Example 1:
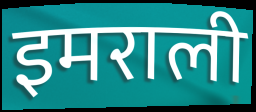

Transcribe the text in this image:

इमराली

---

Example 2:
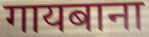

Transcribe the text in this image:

गायबाना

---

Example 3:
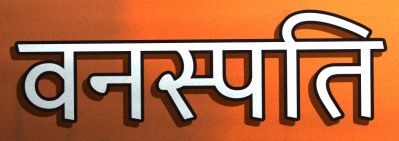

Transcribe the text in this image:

वनस्‍पति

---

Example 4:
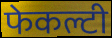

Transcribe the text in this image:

फेकल्टी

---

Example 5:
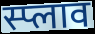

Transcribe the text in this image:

स्प्लाव